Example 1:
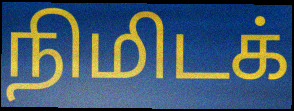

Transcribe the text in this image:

நிமிடக்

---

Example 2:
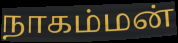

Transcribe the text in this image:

நாகம்மன்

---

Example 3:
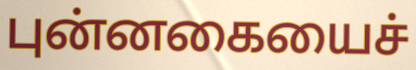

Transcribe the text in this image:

புன்னகையைச்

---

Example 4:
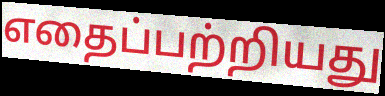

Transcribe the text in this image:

எதைப்பற்றியது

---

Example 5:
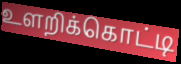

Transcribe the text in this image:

உளறிக்கொட்டி